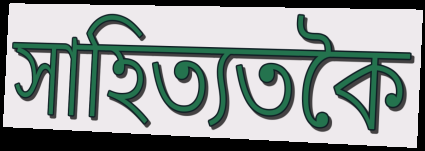
সাহিত্যতকৈ